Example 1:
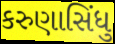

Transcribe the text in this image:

કરુણાસિંધુ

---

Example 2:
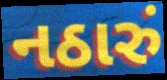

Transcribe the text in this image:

નઠારું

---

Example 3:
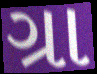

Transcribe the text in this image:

ગ્રા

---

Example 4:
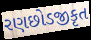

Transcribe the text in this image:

રણછોડજીકૃત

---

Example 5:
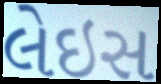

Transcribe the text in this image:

લેઇસ